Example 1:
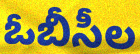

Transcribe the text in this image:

ఓబీసీల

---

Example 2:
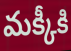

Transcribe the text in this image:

మక్కీకి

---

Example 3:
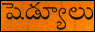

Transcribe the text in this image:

షెడ్యూలు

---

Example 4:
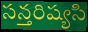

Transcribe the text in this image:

సన్తరిష్యసి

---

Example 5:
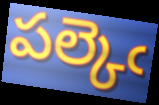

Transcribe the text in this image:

పల్కెఁ